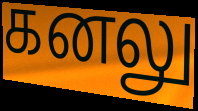
கனலு